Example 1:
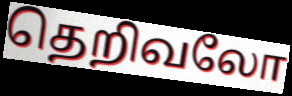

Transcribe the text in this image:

தெறிவலோ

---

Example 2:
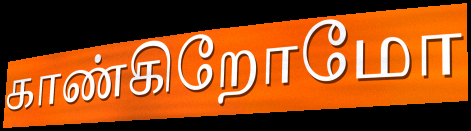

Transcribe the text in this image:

காண்கிறோமோ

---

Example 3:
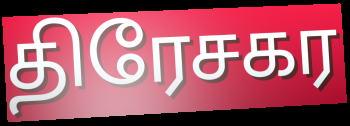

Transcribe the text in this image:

திரேசகர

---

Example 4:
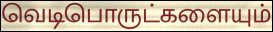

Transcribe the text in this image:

வெடிபொருட்களையும்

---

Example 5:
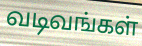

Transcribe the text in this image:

வடிவங்கள்